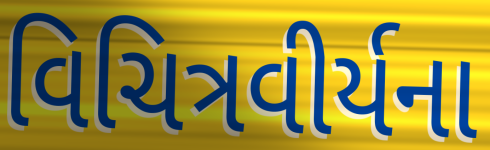
વિચિત્રવીર્યના